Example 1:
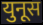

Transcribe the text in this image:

युनूस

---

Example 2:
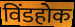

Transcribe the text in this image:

विंडहोक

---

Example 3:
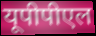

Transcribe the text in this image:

यूपीपीएल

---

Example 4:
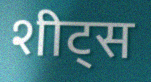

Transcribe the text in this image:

शीट्स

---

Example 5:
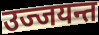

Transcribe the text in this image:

उज्जयन्त